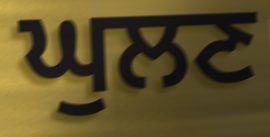
ਘੁਲਣ